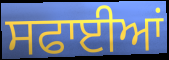
ਸਫਾਈਆਂ